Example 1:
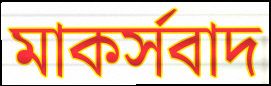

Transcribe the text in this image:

মাকর্সবাদ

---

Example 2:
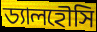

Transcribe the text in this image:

ড্যালহৌসি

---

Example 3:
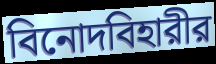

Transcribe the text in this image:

বিনোদবিহারীর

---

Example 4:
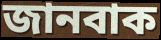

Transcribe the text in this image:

জানবাক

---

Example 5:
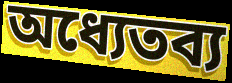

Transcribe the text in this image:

অধ্যেতব্য